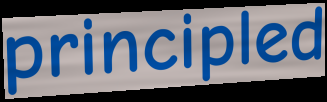
principled